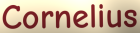
Cornelius